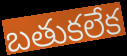
బతుకలేక